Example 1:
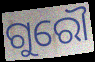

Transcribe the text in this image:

ଗୁରୌ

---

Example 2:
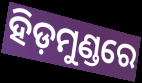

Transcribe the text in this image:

ହିଡ଼ମୁଣ୍ଡରେ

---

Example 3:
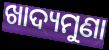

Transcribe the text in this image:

ଖାଦ୍ୟମୁଣା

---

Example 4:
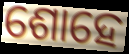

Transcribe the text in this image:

ଶୋହେ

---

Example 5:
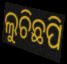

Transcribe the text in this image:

ଲୁଚିଛପି